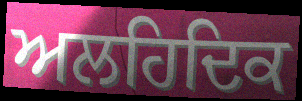
ਅਲਹਿਦਿਕ